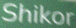
Shikor